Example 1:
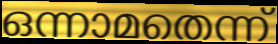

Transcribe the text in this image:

ഒന്നാമതെന്ന്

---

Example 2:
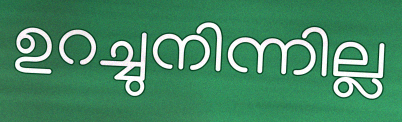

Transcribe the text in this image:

ഉറച്ചുനിന്നില്ല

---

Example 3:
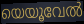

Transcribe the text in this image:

യെയൂവേൽ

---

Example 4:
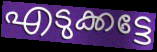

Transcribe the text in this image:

എടുക്കട്ടേ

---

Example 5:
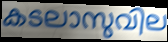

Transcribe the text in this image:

കടലാസുവില